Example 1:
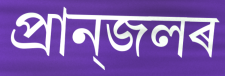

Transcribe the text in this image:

প্ৰান্জলৰ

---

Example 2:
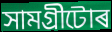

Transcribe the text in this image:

সামগ্ৰীটোৰ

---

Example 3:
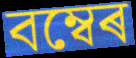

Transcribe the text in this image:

বম্বেৰ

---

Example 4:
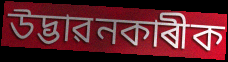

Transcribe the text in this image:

উদ্ভাৱনকাৰীক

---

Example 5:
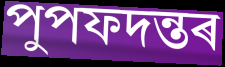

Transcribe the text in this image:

পুপফদন্তৰ